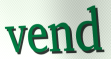
vend